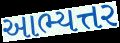
આભ્યત્તર